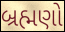
બ્રહ્મણો